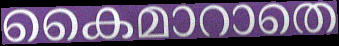
കൈമാറാതെ